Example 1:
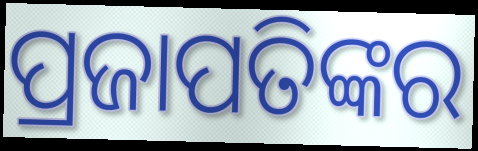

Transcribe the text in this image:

ପ୍ରଜାପତିଙ୍କର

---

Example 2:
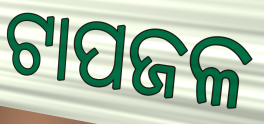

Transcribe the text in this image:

ଟାପଜଳ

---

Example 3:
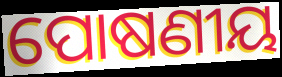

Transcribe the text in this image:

ପୋଷଣୀୟ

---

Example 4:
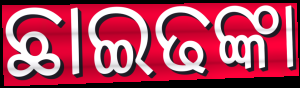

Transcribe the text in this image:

ଛାଇଢଙ୍କା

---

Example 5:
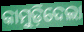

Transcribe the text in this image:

କାମୁଡ଼ିଦେଲା